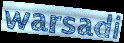
warsadi